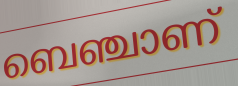
ബെഞ്ചാണ്